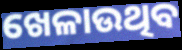
ଖେଳାଉଥିବ